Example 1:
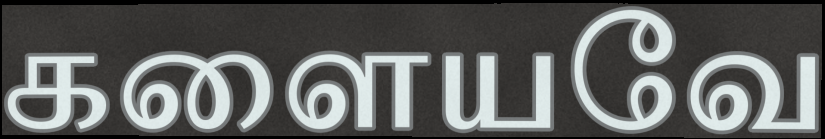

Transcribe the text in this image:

களையவே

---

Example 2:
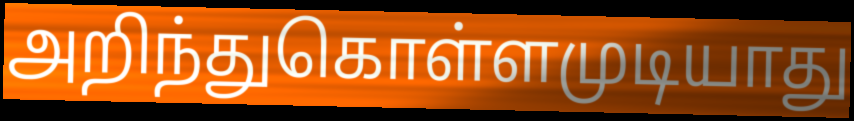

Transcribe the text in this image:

அறிந்துகொள்ளமுடியாது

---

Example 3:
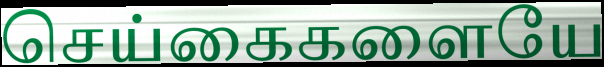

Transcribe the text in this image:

செய்கைகளையே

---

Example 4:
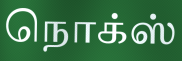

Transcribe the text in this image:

நொக்ஸ்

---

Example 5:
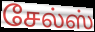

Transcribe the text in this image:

சேல்ஸ்